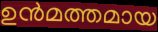
ഉൻമത്തമായ